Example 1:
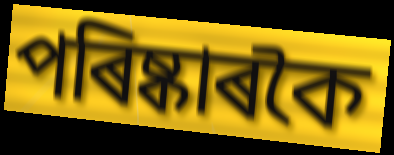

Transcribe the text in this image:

পৰিষ্কাৰকৈ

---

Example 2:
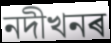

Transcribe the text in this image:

নদীখনৰ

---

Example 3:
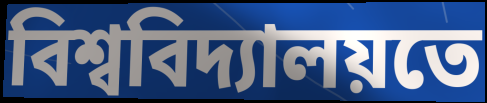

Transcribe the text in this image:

বিশ্ববিদ্যালয়তে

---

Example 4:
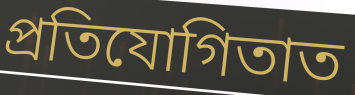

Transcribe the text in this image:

প্ৰতিযোগিতাত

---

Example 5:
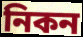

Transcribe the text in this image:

নিকন